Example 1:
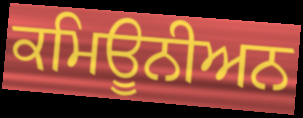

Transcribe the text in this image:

ਕਮਿਊਨੀਅਨ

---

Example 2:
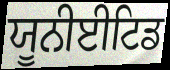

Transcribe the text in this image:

ਯੂਨੀਈਟਿਡ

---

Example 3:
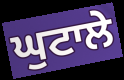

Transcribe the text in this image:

ਘੁਟਾਲੇ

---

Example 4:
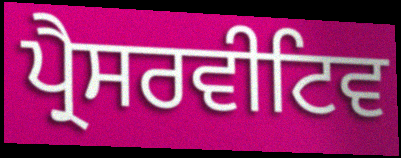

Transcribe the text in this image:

ਪ੍ਰੈਸਰਵੀਟਿਵ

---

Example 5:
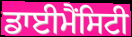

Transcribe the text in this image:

ਡਾਈਮੈਂਸਿਟੀ